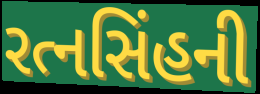
રત્નસિંહની